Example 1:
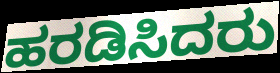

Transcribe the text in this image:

ಹರಡಿಸಿದರು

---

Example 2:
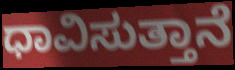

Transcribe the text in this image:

ಧಾವಿಸುತ್ತಾನೆ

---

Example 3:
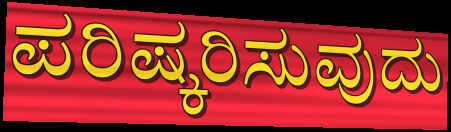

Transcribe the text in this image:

ಪರಿಷ್ಕರಿಸುವುದು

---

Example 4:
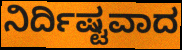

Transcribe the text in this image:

ನಿರ್ದಿಷ್ಟವಾದ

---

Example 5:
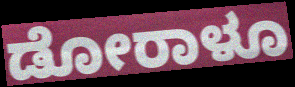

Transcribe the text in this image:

ಡೋರಾಳೂ